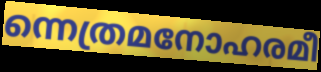
ന്നെത്രമനോഹരമീ